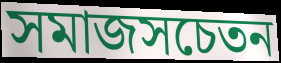
সমাজসচেতন